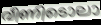
വീണിടൊലാ